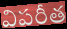
విపరీత